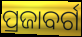
ପ୍ରଜାବର୍ଗ